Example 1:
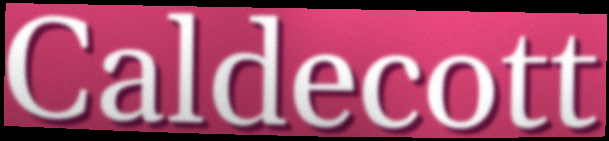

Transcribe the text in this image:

Caldecott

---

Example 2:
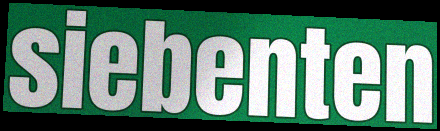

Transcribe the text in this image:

siebenten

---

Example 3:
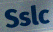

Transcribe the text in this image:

Sslc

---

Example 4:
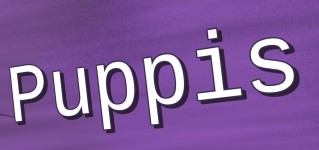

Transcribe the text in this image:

Puppis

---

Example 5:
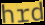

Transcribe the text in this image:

hrd